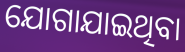
ଯୋଗାଯାଇଥିବା